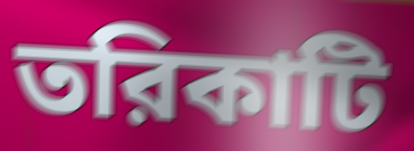
তরিকাটি